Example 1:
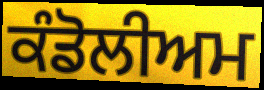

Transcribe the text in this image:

ਕੰਡੋਲੀਅਮ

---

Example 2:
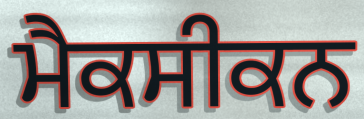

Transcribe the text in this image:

ਮੈਕਸੀਕਨ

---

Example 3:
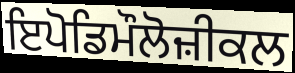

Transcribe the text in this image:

ਇਪੋਡਿਮੌਲੋਜ਼ੀਕਲ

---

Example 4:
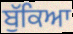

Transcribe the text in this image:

ਬੁੱਕਿਆ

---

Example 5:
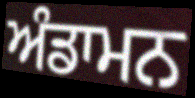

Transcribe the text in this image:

ਅੰਡਾਮਨ